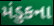
મંડુકના